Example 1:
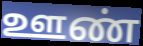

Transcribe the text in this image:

ஊண்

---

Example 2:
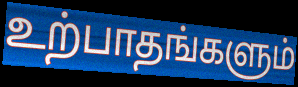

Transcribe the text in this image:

உற்பாதங்களும்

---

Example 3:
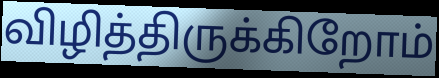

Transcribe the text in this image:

விழித்திருக்கிறோம்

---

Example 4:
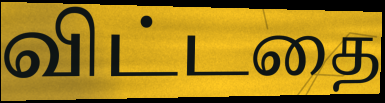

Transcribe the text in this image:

விட்டதை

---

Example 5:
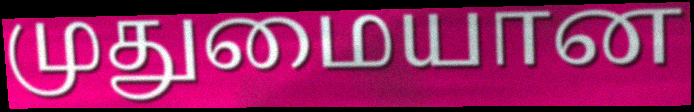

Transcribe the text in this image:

முதுமையான